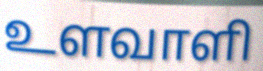
உளவாளி